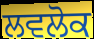
ਲਵਲੋਕ